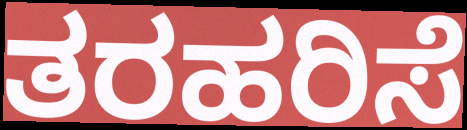
ತರಹರಿಸೆ